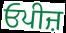
ਓਪੀਜ਼